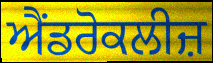
ਐਂਡਰੋਕਲੀਜ਼